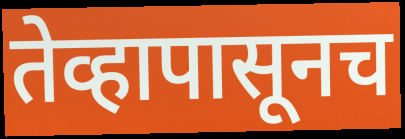
तेव्हापासूनच